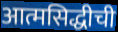
आत्मसिद्धीची